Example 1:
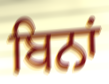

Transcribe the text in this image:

ਬਿਨਾਂ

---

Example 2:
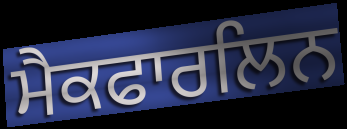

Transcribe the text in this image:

ਮੈਕਫਾਰਲਿਨ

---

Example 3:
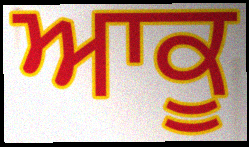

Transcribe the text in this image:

ਆਕੂ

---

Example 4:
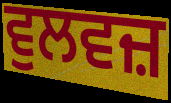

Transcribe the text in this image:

ਵੁਲਵਜ਼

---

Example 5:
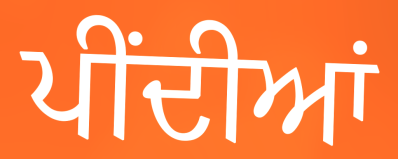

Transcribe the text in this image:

ਪੀਂਦੀਆਂ